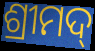
ଶ୍ରୀମଦ୍